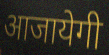
आजायेगी